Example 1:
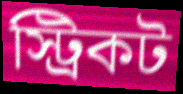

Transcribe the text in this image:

স্ট্রিকট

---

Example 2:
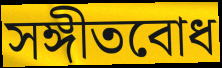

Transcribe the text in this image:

সঙ্গীতবোধ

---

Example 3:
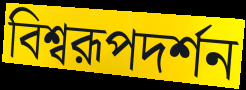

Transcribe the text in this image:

বিশ্বরূপদর্শন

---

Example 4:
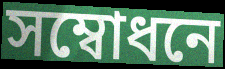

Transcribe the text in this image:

সম্বোধনে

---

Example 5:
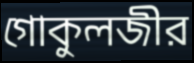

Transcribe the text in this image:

গোকুলজীর